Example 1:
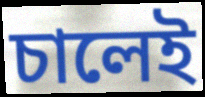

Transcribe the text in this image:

চালেই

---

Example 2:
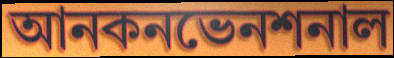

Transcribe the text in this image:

আনকনভেনশনাল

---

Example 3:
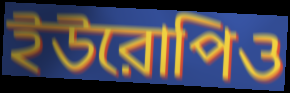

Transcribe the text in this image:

ইউরোপিও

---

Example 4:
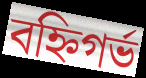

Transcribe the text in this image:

বহ্নিগর্ভ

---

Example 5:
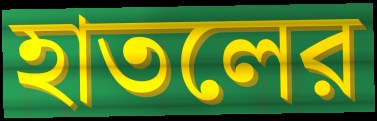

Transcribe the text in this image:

হাতলের